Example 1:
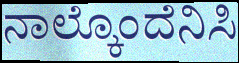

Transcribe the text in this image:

ನಾಲ್ಕೊಂದೆನಿಸಿ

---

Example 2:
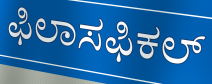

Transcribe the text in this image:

ಫಿಲಾಸಫಿಕಲ್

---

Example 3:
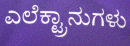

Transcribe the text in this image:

ಎಲೆಕ್ಟ್ರಾನುಗಳು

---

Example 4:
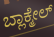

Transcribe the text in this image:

ಬ್ಲಾಕ್ಮೇಲ್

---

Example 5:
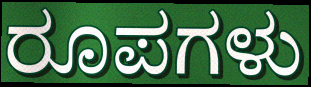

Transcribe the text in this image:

ರೂಪಗಳು